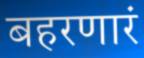
बहरणारं